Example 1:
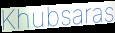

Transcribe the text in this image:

Khubsaras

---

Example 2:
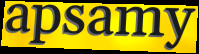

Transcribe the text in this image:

apsamy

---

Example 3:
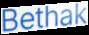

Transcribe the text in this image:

Bethak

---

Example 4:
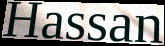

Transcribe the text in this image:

Hassan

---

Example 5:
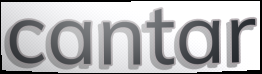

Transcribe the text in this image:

cantar